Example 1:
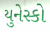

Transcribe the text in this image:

યુનેસ્કો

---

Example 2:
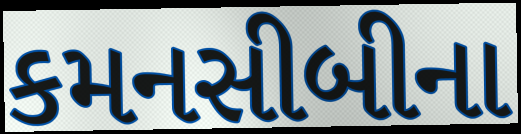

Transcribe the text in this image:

કમનસીબીના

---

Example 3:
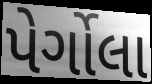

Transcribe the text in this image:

પેર્ગોલા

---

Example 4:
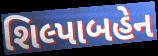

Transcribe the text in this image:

શિલ્પાબહેન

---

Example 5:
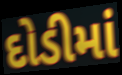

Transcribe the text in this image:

દોડીમાં